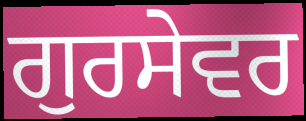
ਗੁਰਸੇਵਰ